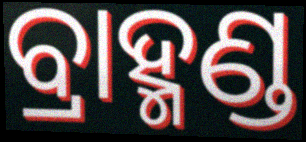
ବ୍ରାହ୍ମଣ୍ଡ